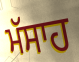
ਮੱਸਾਹ